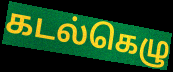
கடல்கெழு